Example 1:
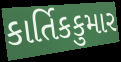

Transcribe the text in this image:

કાર્તિકકુમાર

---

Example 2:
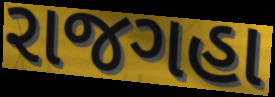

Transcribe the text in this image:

રાજગહા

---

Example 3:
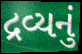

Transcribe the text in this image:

દ્રવ્યનું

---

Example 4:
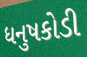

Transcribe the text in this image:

ધનુષકોડી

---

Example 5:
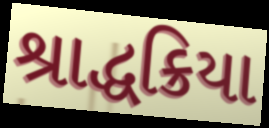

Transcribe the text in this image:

શ્રાદ્ધક્રિયા